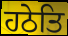
ਹਠੇਤਿ